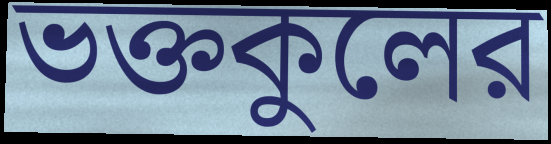
ভক্তকুলের